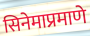
सिनेमाप्रमाणे